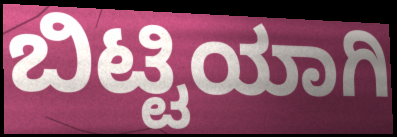
ಬಿಟ್ಟಿಯಾಗಿ